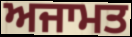
ਅਜਾਮਤ